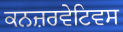
ਕਨਜ਼ਰਵੇਟਿਵਸ